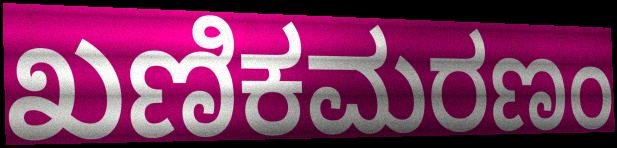
ಖಣಿಕಮರಣಂ